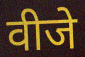
वीजे